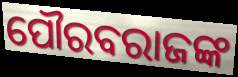
ପୌରବରାଜଙ୍କ